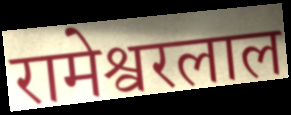
रामेश्वरलाल